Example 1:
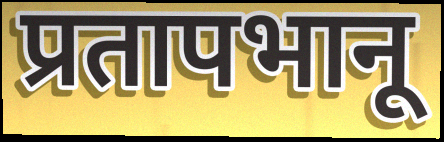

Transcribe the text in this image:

प्रतापभानू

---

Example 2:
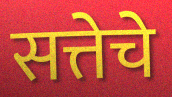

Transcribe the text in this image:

सत्तेचे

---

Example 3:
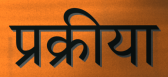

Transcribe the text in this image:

प्रक्रीया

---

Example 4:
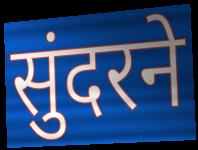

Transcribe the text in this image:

सुंदरने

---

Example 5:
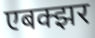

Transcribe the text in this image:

एबक्झर